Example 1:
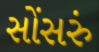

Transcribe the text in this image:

સોંસરું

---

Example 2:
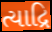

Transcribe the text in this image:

ત્યાદ્રિ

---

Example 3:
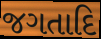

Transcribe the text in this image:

જગતાદિ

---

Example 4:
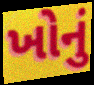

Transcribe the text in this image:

ખોનું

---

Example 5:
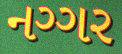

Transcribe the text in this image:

નગ્ગર